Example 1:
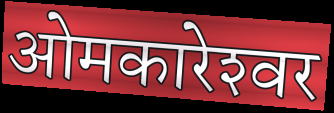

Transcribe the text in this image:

ओमकारेश्वर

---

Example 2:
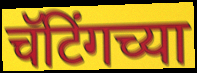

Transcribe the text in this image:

चॅटिंगच्या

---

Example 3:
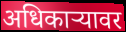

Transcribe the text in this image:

अधिकार्‍यावर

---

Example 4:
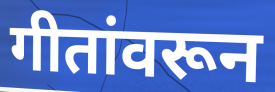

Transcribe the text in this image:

गीतांवरून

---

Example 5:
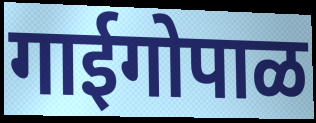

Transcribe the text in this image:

गाईगोपाळ